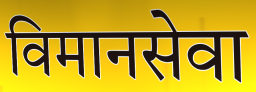
विमानसेवा